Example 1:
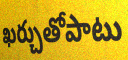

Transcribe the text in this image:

ఖర్చుతోపాటు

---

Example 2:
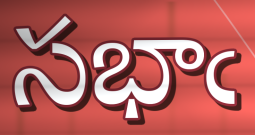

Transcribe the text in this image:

సభాఁ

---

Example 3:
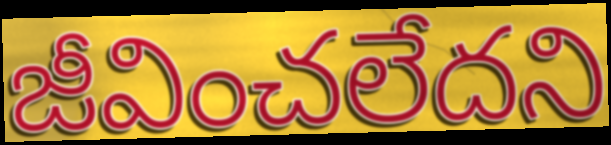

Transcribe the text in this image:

జీవించలేదని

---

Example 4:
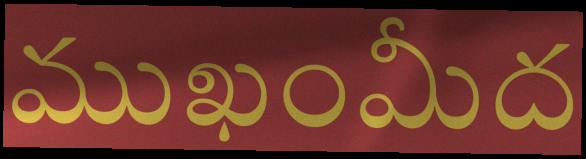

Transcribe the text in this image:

ముఖంమీద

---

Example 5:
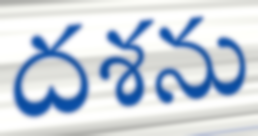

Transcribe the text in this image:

దశను